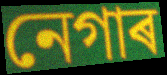
নেগাৰ